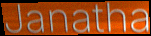
Janatha